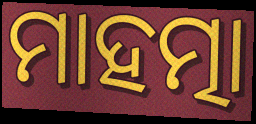
ମାହତ୍ମା